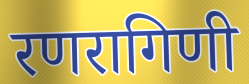
रणरागिणी